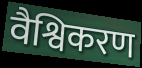
वैश्विकरण